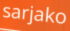
sarjako